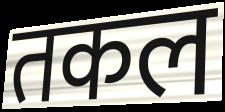
तकल